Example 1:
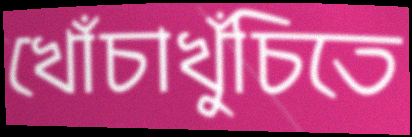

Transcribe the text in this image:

খোঁচাখুঁচিতে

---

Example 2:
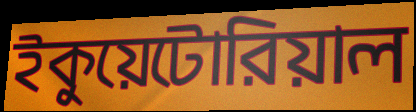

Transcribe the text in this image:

ইকুয়েটোরিয়াল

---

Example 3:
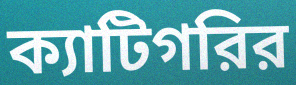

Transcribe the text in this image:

ক্যাটিগরির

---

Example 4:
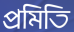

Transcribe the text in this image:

প্রমিতি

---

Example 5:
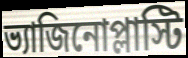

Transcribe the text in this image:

ভ্যাজিনোপ্লাস্টি